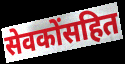
सेवकोंसहित